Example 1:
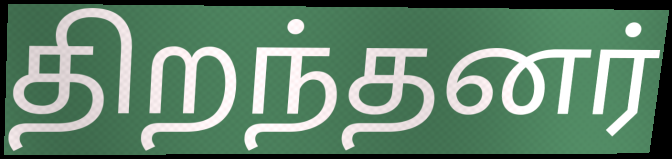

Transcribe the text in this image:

திறந்தனர்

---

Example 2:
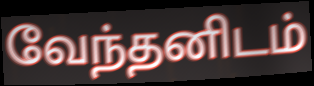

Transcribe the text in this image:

வேந்தனிடம்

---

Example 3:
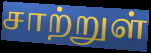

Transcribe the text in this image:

சாற்றுள்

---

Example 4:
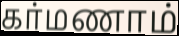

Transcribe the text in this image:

கர்மணாம்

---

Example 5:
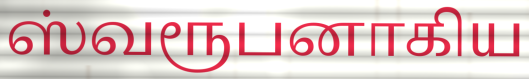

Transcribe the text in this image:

ஸ்வரூபனாகிய